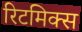
रिटमिक्स